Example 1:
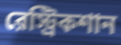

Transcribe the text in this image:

রেস্ট্রিকশান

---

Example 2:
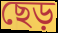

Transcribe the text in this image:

ছেড়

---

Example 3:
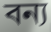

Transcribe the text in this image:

বন্য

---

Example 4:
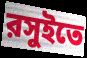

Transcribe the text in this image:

রসুইতে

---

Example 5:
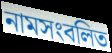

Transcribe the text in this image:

নামসংবলিত